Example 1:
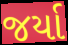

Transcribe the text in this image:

જર્યા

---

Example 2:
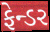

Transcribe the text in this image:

ફેન્ડર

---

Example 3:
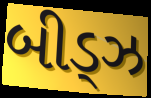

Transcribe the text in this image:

બીડ્ઝ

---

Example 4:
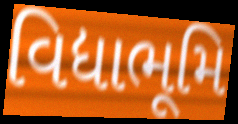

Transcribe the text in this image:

વિદ્યાભૂમિ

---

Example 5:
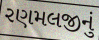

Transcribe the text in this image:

રણમલજીનું